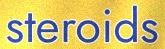
steroids